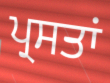
ਪ੍ਰਸਤਾਂ